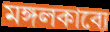
মঙ্গলকাব্যে